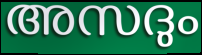
അസദും